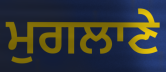
ਮੁਗਲਾਣੇ